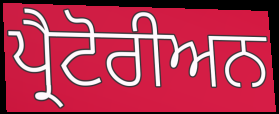
ਪ੍ਰੈਟੋਰੀਅਨ